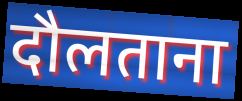
दौलताना